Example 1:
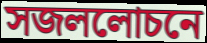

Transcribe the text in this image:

সজললোচনে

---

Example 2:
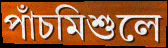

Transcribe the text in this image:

পাঁচমিশুলে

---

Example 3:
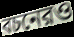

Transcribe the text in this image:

বচনেরও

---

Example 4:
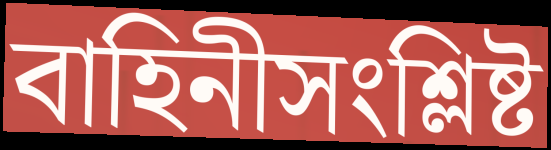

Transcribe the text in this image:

বাহিনীসংশ্লিষ্ট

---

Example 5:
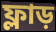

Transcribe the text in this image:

ফ্লাড়